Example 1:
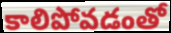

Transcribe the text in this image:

కాలిపోవడంతో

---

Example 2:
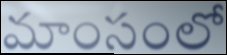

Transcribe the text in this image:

మాంసంలో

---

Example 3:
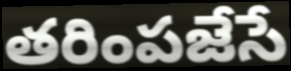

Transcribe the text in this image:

తరింపజేసే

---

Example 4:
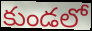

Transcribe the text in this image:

కుండలో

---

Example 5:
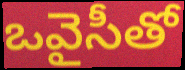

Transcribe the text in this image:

ఒవైసీతో